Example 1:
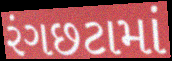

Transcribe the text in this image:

રંગછટામાં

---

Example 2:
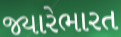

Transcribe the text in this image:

જ્યારેભારત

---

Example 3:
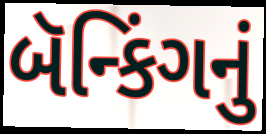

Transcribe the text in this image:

બૅન્કિંગનું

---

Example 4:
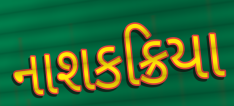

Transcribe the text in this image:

નાશકક્રિયા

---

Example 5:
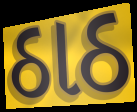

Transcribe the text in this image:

ઠાઠ